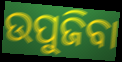
ଉପୁଜିବା